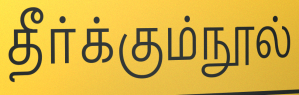
தீர்க்கும்நூல்